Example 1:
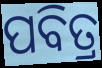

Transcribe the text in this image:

ପବିତ୍ର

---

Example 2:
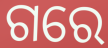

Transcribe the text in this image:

ଗରେ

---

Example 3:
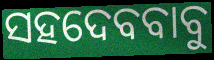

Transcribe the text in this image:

ସହଦେବବାବୁ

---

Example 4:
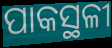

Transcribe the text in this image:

ପାକସ୍ଥଳୀ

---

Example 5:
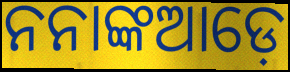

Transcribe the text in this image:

ନନାଙ୍କଆଡ଼େ